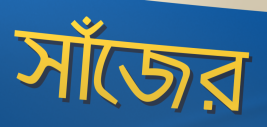
সাঁজের